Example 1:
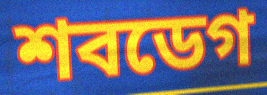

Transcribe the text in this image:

শবডেগ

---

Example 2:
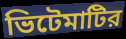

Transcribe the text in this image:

ভিটেমাটির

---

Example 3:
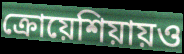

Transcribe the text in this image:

ক্রোয়েশিয়ায়ও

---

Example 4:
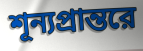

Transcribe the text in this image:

শূন্যপ্রান্তরে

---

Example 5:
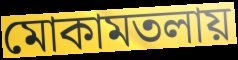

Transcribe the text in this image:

মোকামতলায়